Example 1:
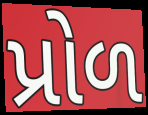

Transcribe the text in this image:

પ્રોળ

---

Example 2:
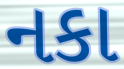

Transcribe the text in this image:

નકા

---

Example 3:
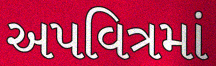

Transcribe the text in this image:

અપવિત્રમાં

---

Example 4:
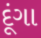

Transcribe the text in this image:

દૂંગા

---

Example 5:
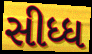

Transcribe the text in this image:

સીધ્ધ